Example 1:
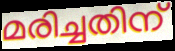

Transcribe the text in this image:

മരിച്ചതിന്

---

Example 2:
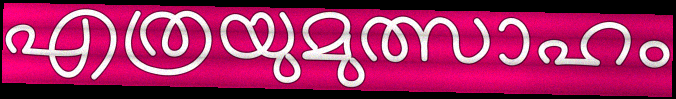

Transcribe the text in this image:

എത്രയുമുത്സാഹം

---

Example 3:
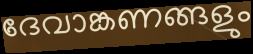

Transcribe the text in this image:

ദേവാങ്കണങ്ങളും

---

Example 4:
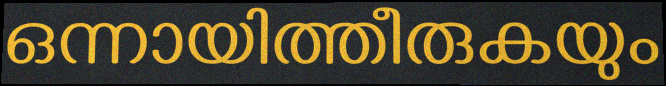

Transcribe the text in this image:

ഒന്നായിത്തീരുകയും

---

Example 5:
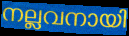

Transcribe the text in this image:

നല്ലവനായി